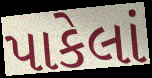
પાકેલાં